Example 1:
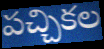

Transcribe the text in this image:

పచ్చికల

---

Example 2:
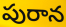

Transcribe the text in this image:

పురాన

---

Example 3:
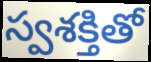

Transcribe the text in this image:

స్వశక్తితో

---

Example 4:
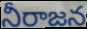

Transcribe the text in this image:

నీరాజన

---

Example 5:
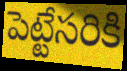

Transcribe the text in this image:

పెట్టేసరికి